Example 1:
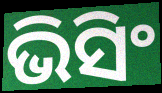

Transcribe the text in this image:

ଭିସିଂ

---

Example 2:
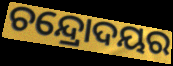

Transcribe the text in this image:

ଚନ୍ଦ୍ରୋଦୟର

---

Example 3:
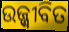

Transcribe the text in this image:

ଉଜ୍ଜ୍ୱୀବିତ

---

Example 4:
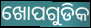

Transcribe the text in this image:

ଖୋପଗୁଡିକ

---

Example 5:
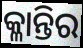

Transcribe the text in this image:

କ୍ଳାନ୍ତିର